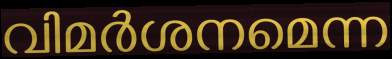
വിമർശനമെന്ന